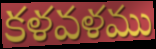
కళవళము